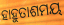
ହାହୁତାଶମୟ